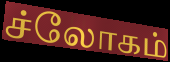
ச்லோகம்